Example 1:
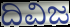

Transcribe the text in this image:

ದಿವಿಜ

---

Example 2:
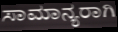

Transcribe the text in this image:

ಸಾಮಾನ್ಯರಾಗಿ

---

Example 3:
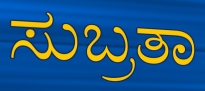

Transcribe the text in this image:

ಸುಬ್ರತಾ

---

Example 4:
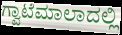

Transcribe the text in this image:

ಗ್ವಾಟೆಮಾಲಾದಲ್ಲಿ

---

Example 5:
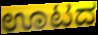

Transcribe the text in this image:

ಊಟದ